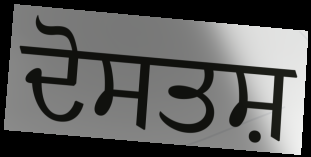
ਦੋਸਤਸ਼